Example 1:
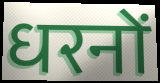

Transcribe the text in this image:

धरनों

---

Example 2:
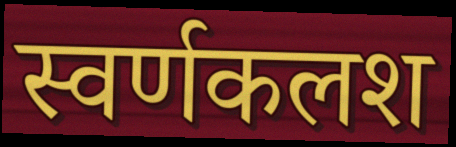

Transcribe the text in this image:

स्वर्णकलश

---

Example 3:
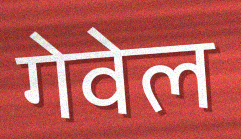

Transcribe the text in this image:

गेवेल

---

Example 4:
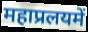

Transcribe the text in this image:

महाप्रलयमें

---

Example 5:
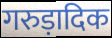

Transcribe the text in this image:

गरुड़ादिक